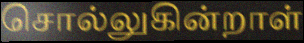
சொல்லுகின்றாள்